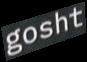
gosht